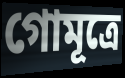
গোমূত্রে